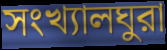
সংখ্যালঘুরা